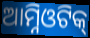
ଆମ୍ନିଓଟିକ୍